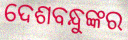
ଦେଶବନ୍ଧୁଙ୍କର